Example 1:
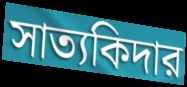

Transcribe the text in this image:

সাত্যকিদার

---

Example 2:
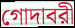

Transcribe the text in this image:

গোদাবরী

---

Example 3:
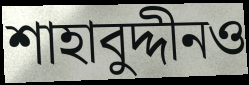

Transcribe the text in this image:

শাহাবুদ্দীনও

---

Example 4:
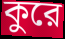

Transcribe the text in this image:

কুরে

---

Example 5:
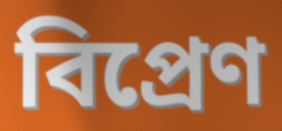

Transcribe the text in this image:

বিপ্রেণ